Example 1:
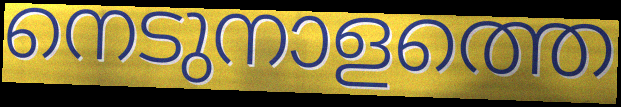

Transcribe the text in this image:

നെടുനാളത്തെ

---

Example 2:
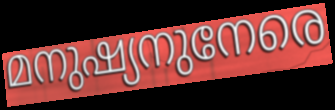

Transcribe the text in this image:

മനുഷ്യനുനേരെ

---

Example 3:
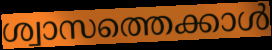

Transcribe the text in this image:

ശ്വാസത്തെക്കാൾ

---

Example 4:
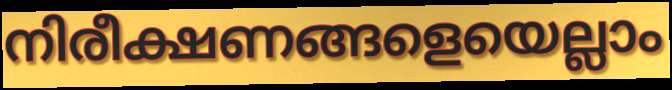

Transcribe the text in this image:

നിരീക്ഷണങ്ങളെയെല്ലാം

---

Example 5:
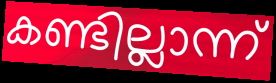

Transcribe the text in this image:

കണ്ടില്ലാന്ന്